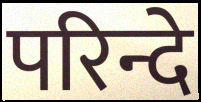
परिन्दे